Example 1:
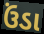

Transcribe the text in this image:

ઉંડા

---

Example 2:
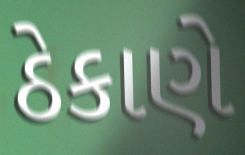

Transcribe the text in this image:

ઠેકાણે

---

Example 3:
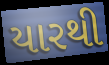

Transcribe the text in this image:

યારથી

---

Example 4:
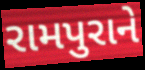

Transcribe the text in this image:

રામપુરાને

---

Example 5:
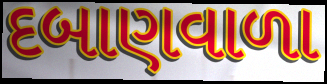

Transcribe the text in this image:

દબાણવાળા